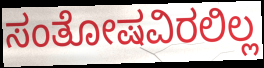
ಸಂತೋಷವಿರಲಿಲ್ಲ